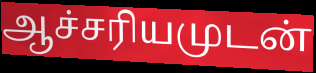
ஆச்சரியமுடன்